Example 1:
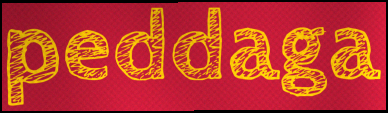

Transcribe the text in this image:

peddaga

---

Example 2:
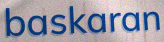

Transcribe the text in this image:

baskaran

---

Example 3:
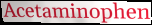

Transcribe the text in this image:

Acetaminophen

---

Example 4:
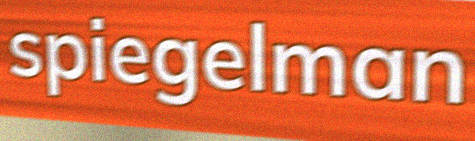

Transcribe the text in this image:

spiegelman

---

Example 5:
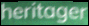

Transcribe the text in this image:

heritager